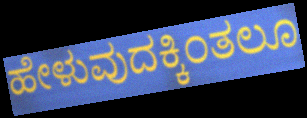
ಹೇಳುವುದಕ್ಕಿಂತಲೂ